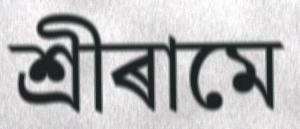
শ্ৰীৰামে